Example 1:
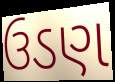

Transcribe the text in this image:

ઉડણ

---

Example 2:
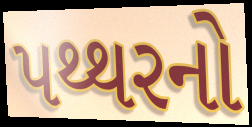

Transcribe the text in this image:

પથ્થરનો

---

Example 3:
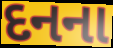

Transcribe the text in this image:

દનના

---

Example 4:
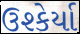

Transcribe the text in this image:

ઉશ્કેર્યા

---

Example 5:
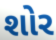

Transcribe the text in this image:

શોર